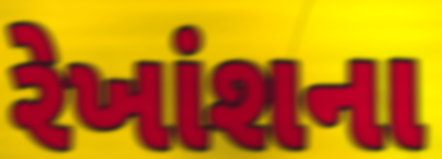
રેખાંશના